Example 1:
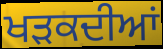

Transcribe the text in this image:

ਖੜਕਦੀਆਂ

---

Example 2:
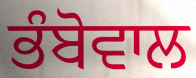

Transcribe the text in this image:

ਭੰਬੋਵਾਲ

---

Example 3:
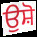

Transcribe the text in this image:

ਉਸ਼ੋ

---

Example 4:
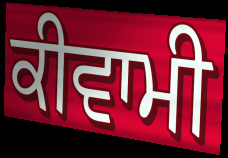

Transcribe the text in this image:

ਕੀਵਾਮੀ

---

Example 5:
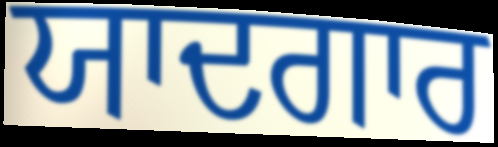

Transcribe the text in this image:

ਯਾਦਗਾਰ